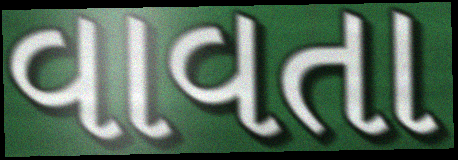
વાવતા